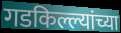
गडकिल्ल्यांच्या